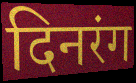
दिनरंग